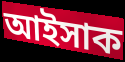
আইসাক